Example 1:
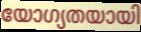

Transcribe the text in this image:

യോഗ്യതയായി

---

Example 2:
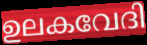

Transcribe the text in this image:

ഉലകവേദി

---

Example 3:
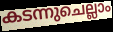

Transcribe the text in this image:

കടന്നുചെല്ലാം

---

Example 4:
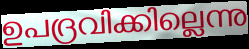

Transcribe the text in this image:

ഉപദ്രവിക്കില്ലെന്നു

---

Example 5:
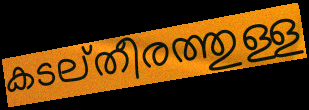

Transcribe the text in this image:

കടല്തീരത്തുള്ള